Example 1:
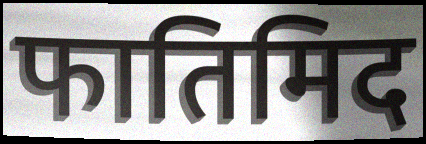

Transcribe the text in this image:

फातिमिद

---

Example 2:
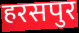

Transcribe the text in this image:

हरसपुर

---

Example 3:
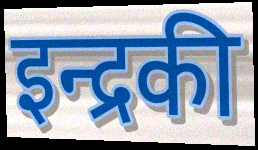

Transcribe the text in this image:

इन्द्रकी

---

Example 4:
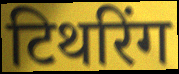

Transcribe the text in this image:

टिथरिंग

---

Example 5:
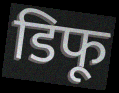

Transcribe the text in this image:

डिफू